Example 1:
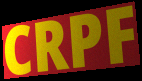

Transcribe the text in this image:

CRPF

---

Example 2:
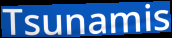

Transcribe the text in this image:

Tsunamis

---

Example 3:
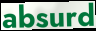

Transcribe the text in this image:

absurd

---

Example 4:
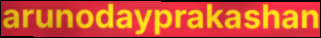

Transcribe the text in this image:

arunodayprakashan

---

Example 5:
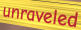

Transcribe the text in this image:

unraveled